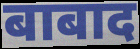
बाबाद